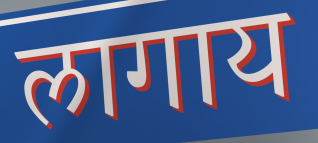
लागाय